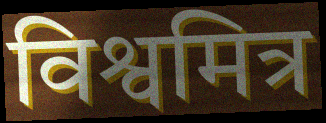
विश्वमित्र